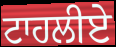
ਟਾਹਲੀਏ